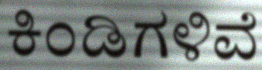
ಕಿಂಡಿಗಳಿವೆ